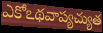
ఎకోఽథవాప్యచ్యుత